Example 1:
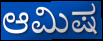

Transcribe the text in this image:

ಆಮಿಷ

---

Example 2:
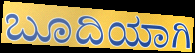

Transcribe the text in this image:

ಬೂದಿಯಾಗಿ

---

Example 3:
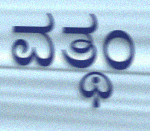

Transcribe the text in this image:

ವತ್ಥಂ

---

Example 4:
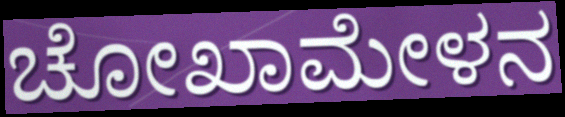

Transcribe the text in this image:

ಚೋಖಾಮೇಳನ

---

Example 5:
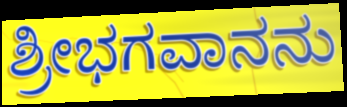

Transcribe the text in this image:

ಶ್ರೀಭಗವಾನನು